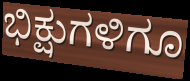
ಭಿಕ್ಷುಗಳಿಗೂ